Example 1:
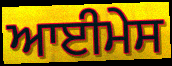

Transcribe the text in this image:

ਆਈਮੇਸ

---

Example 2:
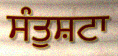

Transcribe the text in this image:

ਸੰਤੁਸ਼ਟਾ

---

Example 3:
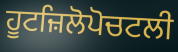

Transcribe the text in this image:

ਹੂਟਜ਼ਿਲੋਪੋਚਟਲੀ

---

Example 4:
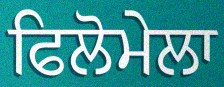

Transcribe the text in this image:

ਫਿਲੋਮੇਲਾ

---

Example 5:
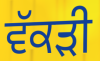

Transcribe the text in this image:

ਵੱਕੜੀ